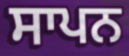
ਸਾਪਨ